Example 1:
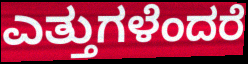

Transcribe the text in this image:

ಎತ್ತುಗಳೆಂದರೆ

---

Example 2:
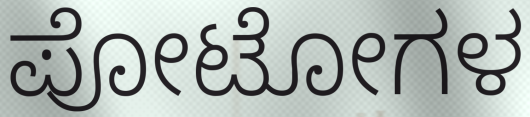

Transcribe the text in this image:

ಪೋಟೋಗಳ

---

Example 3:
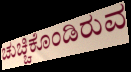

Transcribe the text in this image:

ಚುಚ್ಚಿಕೊಂಡಿರುವ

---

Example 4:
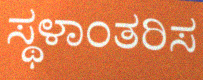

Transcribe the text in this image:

ಸ್ಥಳಾಂತರಿಸ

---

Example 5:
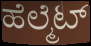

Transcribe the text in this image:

ಹೆಲ್ಮೆಟ್